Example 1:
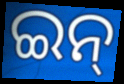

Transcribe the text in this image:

ଇନ୍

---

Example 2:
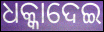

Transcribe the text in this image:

ଧକ୍କାଦେଇ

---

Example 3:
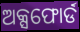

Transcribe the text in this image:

ଅକ୍ସଫୋର୍ଡ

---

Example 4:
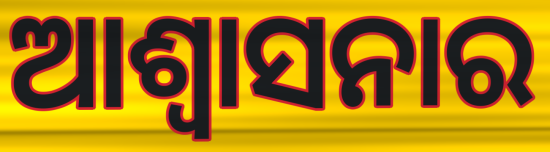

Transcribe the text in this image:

ଆଶ୍ୱାସନାର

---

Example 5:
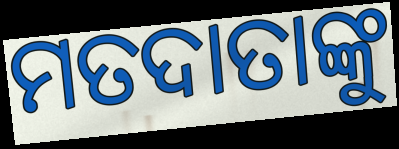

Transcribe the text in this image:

ମତଦାତାଙ୍କୁ